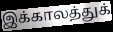
இக்காலத்துக்